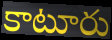
కాటూరు